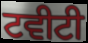
ਟਵੀਟੀ